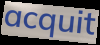
acquit